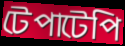
টেপাটেপি